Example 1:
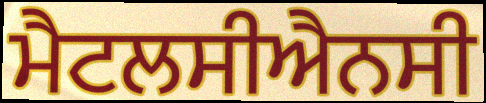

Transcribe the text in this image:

ਮੈਟਲਸੀਐਨਸੀ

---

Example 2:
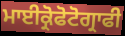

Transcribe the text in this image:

ਮਾਈਕ੍ਰੋਫੋਟੋਗ੍ਰਾਫੀ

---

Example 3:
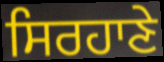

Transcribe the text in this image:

ਸਿਰਹਾਣੇ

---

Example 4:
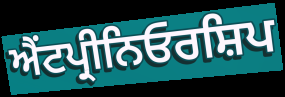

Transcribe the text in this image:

ਐਂਟਪ੍ਰੀਨਿਓਰਸ਼ਿਪ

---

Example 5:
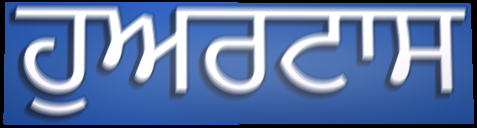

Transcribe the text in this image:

ਹੁਅਰਟਾਸ